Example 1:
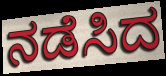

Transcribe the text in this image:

ನಡೆಸಿದ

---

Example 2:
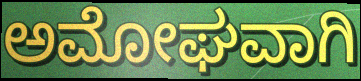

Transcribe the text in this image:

ಅಮೋಘವಾಗಿ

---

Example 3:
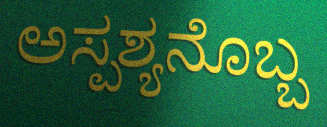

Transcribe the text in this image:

ಅಸ್ಪಶ್ಯನೊಬ್ಬ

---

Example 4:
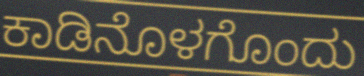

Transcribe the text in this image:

ಕಾಡಿನೊಳಗೊಂದು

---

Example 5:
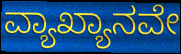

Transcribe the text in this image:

ವ್ಯಾಖ್ಯಾನವೇ